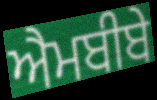
ਐਮਬੀਬੇ